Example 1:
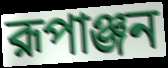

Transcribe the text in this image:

রূপাঞ্জন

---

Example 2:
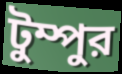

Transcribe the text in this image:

টুম্পুর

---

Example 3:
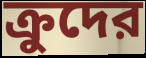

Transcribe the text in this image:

ক্রুদের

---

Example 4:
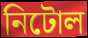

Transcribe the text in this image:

নিটোল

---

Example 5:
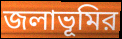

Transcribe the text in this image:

জলাভূমির